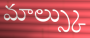
మాల్స్కు